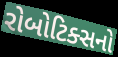
રોબોટિક્સનો